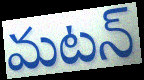
మటన్